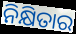
ନିକ୍ଷିତାର